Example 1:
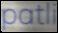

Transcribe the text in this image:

patli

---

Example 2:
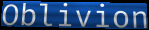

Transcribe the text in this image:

Oblivion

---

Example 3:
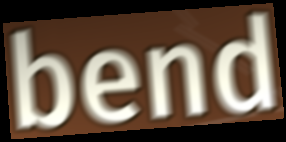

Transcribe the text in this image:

bend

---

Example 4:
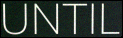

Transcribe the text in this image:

UNTIL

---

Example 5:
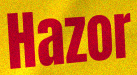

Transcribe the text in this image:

Hazor